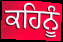
ਕਹਿਨੂੰ